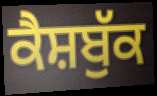
ਕੈਸ਼ਬੁੱਕ